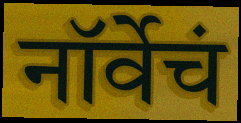
नॉर्वेचं